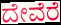
ದೇವೆರೆ